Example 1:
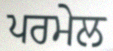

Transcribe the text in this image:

ਪਰਮੇਲ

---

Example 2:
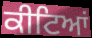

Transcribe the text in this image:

ਕੀਟਿਆਂ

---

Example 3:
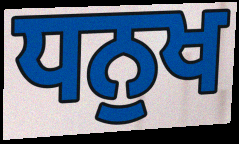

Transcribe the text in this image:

ਧਨੁਖ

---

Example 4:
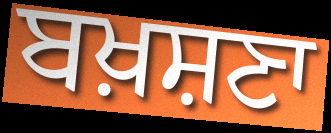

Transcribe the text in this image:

ਬਖ਼ਸ਼ਣਾ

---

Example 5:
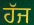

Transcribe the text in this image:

ਹੱਜ